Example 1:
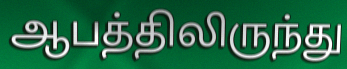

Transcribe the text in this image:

ஆபத்திலிருந்து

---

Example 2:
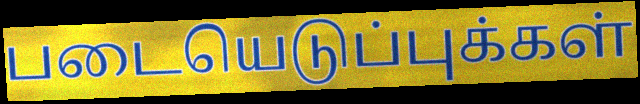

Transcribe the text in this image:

படையெடுப்புக்கள்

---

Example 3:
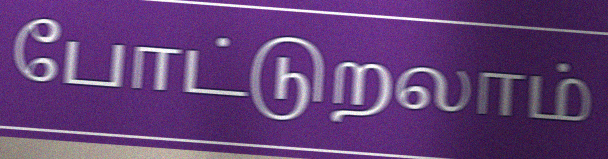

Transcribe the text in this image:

போட்டுறலாம்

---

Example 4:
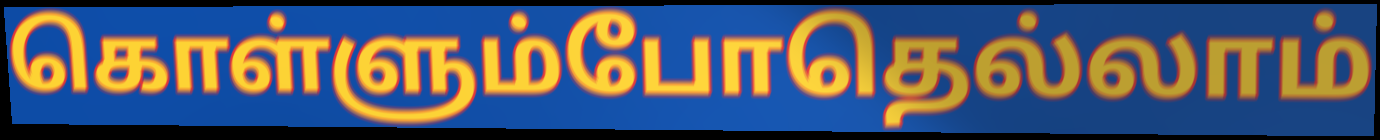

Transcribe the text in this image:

கொள்ளும்போதெல்லாம்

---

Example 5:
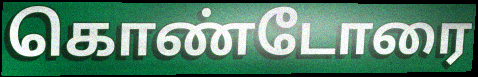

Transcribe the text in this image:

கொண்டோரை